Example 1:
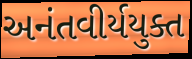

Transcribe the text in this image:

અનંતવીર્યયુક્ત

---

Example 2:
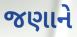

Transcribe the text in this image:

જણાને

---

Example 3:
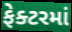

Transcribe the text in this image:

ફેક્ટરમાં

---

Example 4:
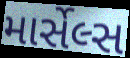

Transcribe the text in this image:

માર્સેલ્સ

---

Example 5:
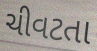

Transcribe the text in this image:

ચીવટતા